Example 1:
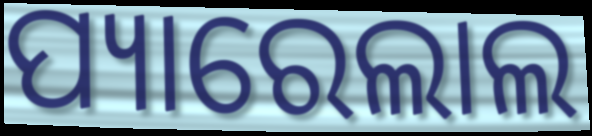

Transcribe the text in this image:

ପ୍ୟାରେଲାଲ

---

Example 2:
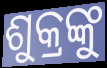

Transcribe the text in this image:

ଶୁକ୍ରଙ୍କୁ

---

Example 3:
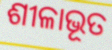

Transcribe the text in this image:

ଶୀଳାଭୂତ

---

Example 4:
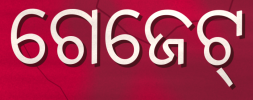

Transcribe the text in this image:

ଗେଜେଟ୍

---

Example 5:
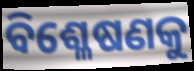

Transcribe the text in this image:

ବିଶ୍ଳେଷଣକୁ